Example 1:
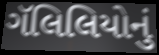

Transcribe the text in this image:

ગૅલિલિયોનું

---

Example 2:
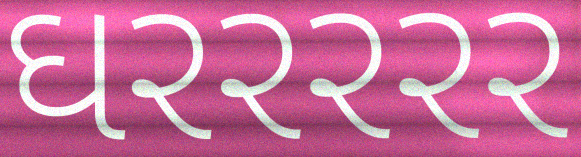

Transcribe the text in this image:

ઘરરરરર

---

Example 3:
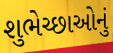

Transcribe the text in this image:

શુભેચ્છાઓનું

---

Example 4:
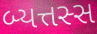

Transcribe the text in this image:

બ્યત્તસ્સ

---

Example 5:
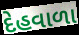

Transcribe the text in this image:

દેહવાળા